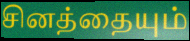
சினத்தையும்